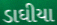
ડાઘીયા